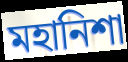
মহানিশা